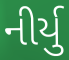
નીર્યુ